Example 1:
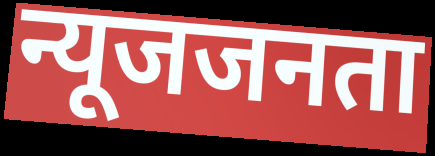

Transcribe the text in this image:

न्यूजजनता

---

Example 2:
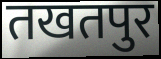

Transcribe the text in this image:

तखतपुर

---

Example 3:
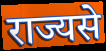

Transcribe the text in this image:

राज्यसे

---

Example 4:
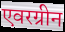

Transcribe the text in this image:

एवरग्रीन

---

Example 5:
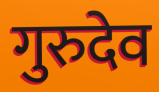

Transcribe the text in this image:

गुरुदेव